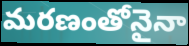
మరణంతోనైనా